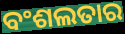
ବଂଶଲତାର